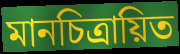
মানচিত্রায়িত